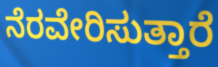
ನೆರವೇರಿಸುತ್ತಾರೆ